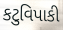
કટુવિપાકી